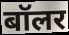
बॉलर